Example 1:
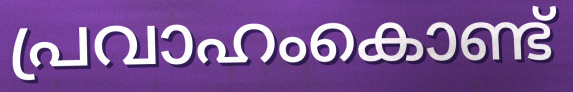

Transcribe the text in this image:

പ്രവാഹംകൊണ്ട്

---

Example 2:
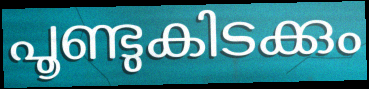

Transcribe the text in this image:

പൂണ്ടുകിടക്കും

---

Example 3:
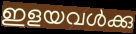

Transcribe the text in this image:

ഇളയവൾക്കു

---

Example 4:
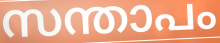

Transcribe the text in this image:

സന്താപം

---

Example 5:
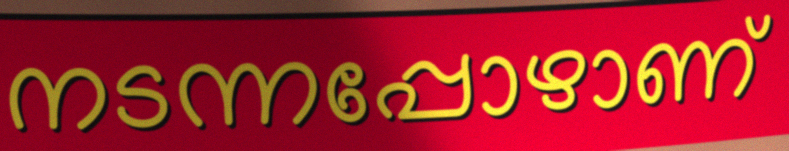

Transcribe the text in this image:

നടന്നപ്പോഴാണ്